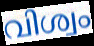
വിശ്വം